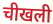
चीखली